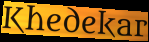
Khedekar